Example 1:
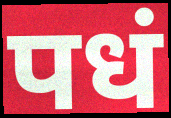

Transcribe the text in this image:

पधं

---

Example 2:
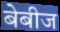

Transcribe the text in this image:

बेबीज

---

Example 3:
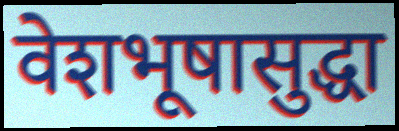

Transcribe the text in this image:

वेशभूषासुद्धा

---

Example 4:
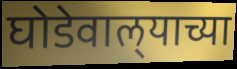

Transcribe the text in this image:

घोडेवाल्याच्या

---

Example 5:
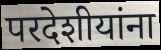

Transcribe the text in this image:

परदेशीयांना